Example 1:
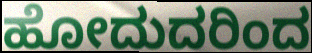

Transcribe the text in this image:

ಹೋದುದರಿಂದ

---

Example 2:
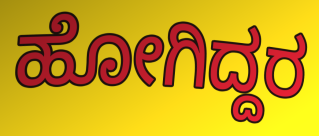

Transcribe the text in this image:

ಹೋಗಿದ್ದರ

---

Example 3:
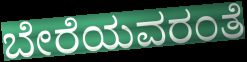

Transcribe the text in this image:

ಬೇರೆಯವರಂತೆ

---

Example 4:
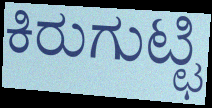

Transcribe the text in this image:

ಕಿರುಗುಟ್ಟಿ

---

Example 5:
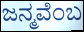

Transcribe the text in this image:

ಜನ್ಮವೆಂಬ